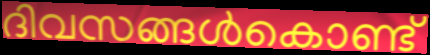
ദിവസങ്ങൾകൊണ്ട്